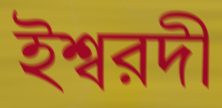
ইশ্বরদী